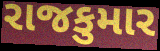
રાજકુમાર